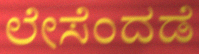
ಲೇಸೆಂದಡೆ